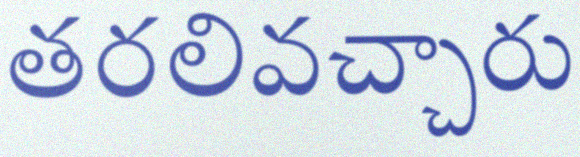
తరలివచ్చారు